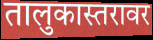
तालुकास्तरावर